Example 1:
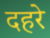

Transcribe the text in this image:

दहरे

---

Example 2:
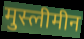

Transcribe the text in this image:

मुस्लीमीन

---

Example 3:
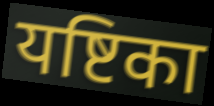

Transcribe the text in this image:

यष्टिका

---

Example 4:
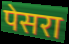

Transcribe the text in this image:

पेसरा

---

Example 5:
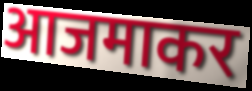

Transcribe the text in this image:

आजमाकर